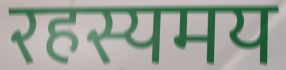
रहस्यमय